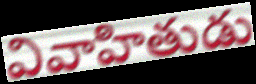
వివాహితుడు